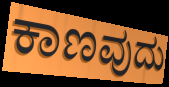
ಕಾಣವುದು